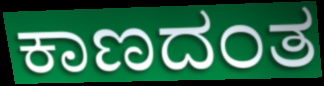
ಕಾಣದಂತ